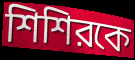
শিশিরকে